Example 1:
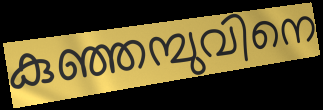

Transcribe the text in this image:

കുഞ്ഞമ്പുവിനെ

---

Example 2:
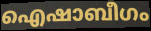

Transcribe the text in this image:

ഐഷാബീഗം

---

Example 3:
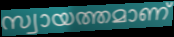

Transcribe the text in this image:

സ്വായത്തമാണ്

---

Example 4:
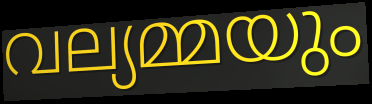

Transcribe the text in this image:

വല്യമ്മയും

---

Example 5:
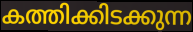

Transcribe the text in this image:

കത്തിക്കിടക്കുന്ന